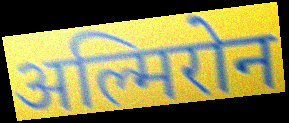
अल्मिरोन